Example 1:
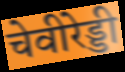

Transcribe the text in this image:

चेवीरेड्डी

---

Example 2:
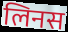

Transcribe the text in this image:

लिनस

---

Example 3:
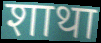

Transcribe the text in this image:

शाथा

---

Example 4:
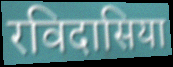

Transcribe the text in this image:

रविदासिया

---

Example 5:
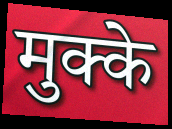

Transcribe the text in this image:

मुक्के